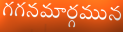
గగనమార్గమున